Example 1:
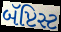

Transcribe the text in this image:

બૅપ્ટિસ્ટ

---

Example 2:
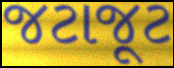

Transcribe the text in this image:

જટાજૂટ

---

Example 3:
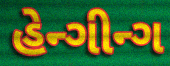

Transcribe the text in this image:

હેન્ગીન્ગ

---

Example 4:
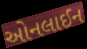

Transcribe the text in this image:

ઓનલાઈન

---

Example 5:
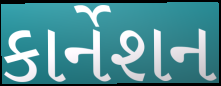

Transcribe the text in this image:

કાર્નેશન